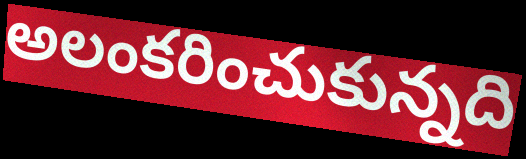
అలంకరించుకున్నది